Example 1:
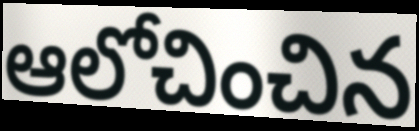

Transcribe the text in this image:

ఆలోచించిన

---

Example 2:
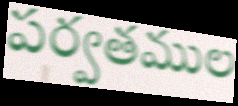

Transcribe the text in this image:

పర్వతముల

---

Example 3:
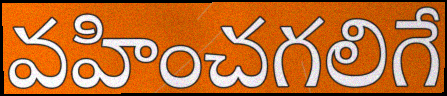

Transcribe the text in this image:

వహించగలిగే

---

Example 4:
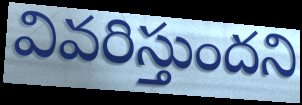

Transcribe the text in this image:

వివరిస్తుందని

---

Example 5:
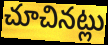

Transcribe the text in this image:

చూచినట్లు